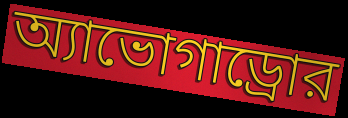
অ্যাভোগাড্রোর